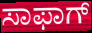
ಸಾಫಾಗ್